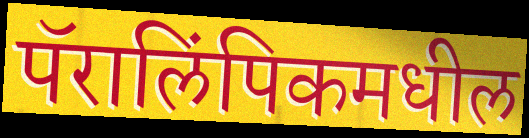
पॅरालिंपिकमधील